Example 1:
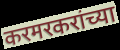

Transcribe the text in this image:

करमरकरांच्या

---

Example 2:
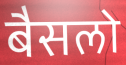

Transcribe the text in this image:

बैसलो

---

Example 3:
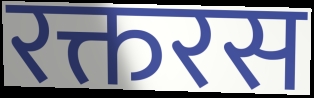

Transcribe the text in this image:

रक्तरस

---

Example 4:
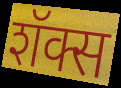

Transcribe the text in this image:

शॅक्स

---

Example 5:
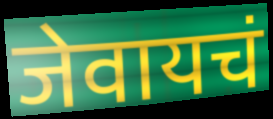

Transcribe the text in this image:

जेवायचं